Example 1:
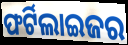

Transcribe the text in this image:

ଫର୍ଟିଲାଇଜର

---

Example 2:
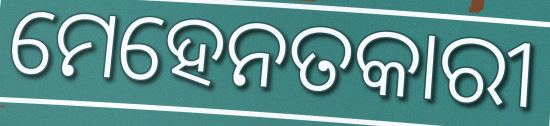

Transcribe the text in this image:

ମେହେନତକାରୀ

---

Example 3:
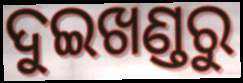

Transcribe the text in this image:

ଦୁଇଖଣ୍ଡରୁ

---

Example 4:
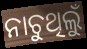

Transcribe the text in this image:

ନାଚୁଥିଲୁଁ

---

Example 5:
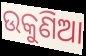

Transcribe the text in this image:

ଉକୁଣିଆ